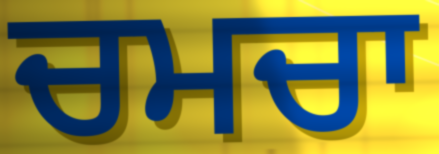
ਚਮਚਾ